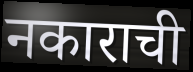
नकाराची